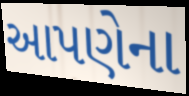
આપણેના